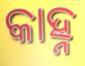
କାହ୍ନ